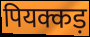
पियक्कड़